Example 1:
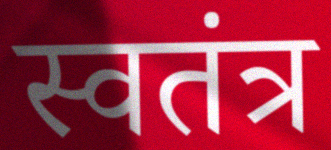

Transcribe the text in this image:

स्वतंत्र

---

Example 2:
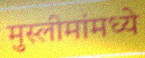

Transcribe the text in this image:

मुस्लीमांमध्ये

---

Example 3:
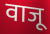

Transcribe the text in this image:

वाजू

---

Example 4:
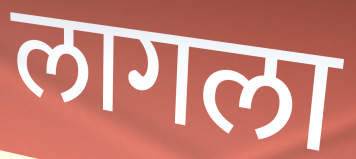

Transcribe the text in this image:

लागला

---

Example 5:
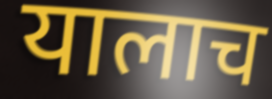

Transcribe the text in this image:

यालाच